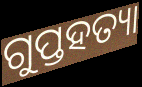
ଗୁପ୍ତହତ୍ୟା